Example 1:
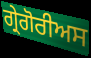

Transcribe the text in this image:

ਗ੍ਰੇਗੋਰੀਅਸ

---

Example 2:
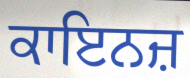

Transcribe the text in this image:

ਕਾਇਨਜ਼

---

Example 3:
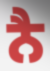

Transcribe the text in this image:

ਨੈ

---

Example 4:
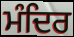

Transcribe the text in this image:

ਮੰਦਿਰ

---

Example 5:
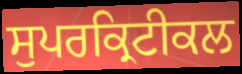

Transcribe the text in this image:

ਸੁਪਰਕ੍ਰਿਟੀਕਲ